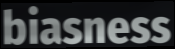
biasness